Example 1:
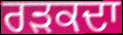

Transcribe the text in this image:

ਰੜਕਦਾ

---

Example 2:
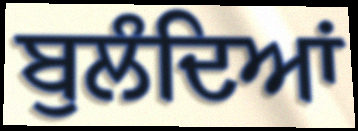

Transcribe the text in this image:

ਬੁਲੰਦਿਆਂ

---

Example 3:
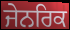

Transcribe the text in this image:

ਜੇਨਰਿਕ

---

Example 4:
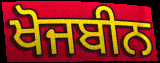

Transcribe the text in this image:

ਖੋਜਬੀਨ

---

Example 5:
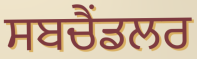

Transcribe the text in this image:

ਸਬਚੈਂਡਲਰ